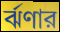
র্ঝণার